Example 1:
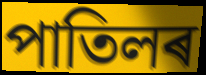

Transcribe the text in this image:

পাতিলৰ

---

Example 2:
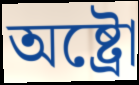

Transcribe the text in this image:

অষ্ট্ৰো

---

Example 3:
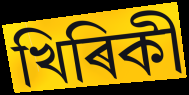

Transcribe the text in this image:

খিৰিকী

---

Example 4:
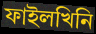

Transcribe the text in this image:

ফাইলখিনি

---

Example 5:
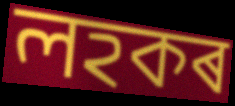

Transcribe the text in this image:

লহকৰ